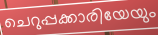
ചെറുപ്പക്കാരിയേയും